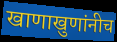
खाणाखुणांनीच